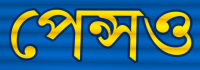
পেন্সও